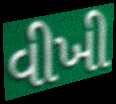
વીખી